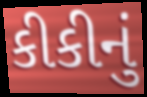
કીકીનું